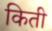
किती